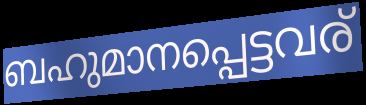
ബഹുമാനപ്പെട്ടവര്